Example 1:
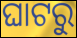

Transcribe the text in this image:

ଘାଟରୁ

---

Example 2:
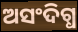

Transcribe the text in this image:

ଅସଂଦିଗ୍ଧ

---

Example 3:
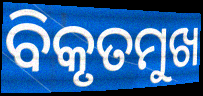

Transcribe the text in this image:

ବିକୃତମୁଖ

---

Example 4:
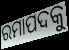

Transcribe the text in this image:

ରମାପଦକୁ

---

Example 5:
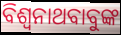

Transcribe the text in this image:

ବିଶ୍ୱନାଥବାବୁଙ୍କ